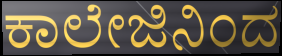
ಕಾಲೇಜಿನಿಂದ